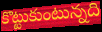
కొట్టుకుంటున్నది